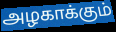
அழகாக்கும்